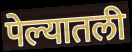
पेल्यातली